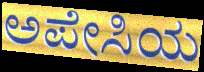
ಅಪೇಸಿಯ